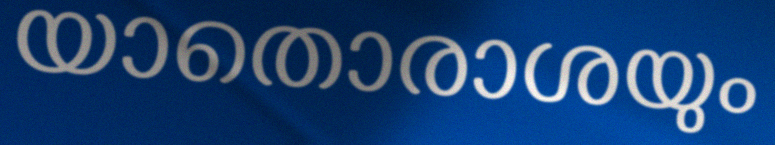
യാതൊരാശയും